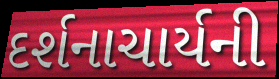
દર્શનાચાર્યની